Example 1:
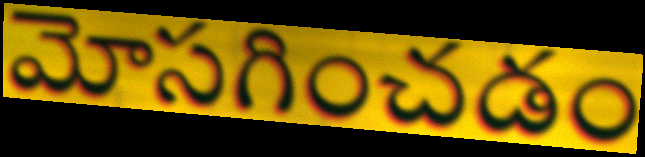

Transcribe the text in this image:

మోసగించడం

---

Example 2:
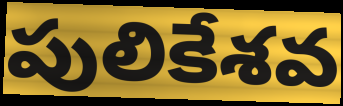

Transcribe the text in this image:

పులికేశవ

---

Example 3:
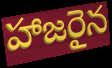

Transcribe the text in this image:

హాజరైన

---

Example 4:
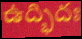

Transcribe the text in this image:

ఉద్భిదః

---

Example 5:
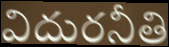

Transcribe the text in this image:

విదురనీతి